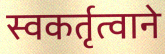
स्वकर्तृत्वाने